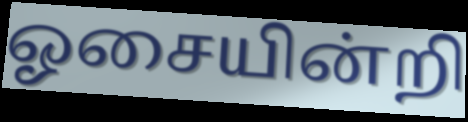
ஓசையின்றி